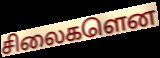
சிலைகளென